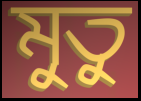
মুতু